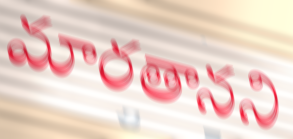
మారతానని